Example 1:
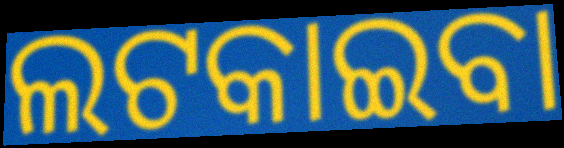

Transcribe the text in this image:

ଲଟକାଇବା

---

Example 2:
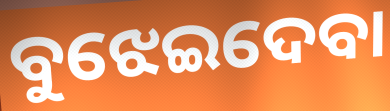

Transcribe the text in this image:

ବୁଝେଇଦେବା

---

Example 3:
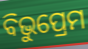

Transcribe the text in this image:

ବିଭୁପ୍ରେମ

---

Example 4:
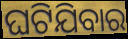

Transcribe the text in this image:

ଘଟିଯିବାର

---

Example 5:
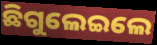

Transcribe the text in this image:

ଛିଗୁଲେଇଲେ